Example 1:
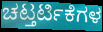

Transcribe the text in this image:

ಚಟ್ತರ್ಟಿಕೆಗಳ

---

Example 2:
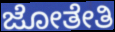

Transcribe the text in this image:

ಜೋತೇತಿ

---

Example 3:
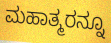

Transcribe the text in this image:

ಮಹಾತ್ಮರನ್ನೂ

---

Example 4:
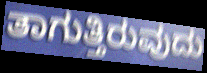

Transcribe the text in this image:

ತಾಗುತ್ತಿರುವುದು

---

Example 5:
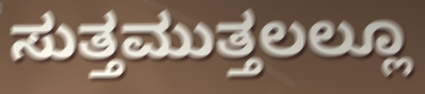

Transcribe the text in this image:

ಸುತ್ತಮುತ್ತಲಲ್ಲೂ